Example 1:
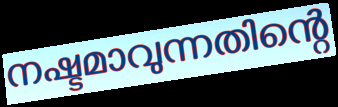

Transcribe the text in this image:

നഷ്ടമാവുന്നതിന്റെ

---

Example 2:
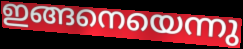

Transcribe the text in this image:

ഇങ്ങനെയെന്നു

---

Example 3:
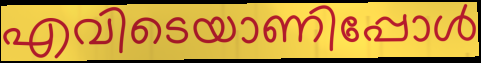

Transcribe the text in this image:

എവിടെയാണിപ്പോൾ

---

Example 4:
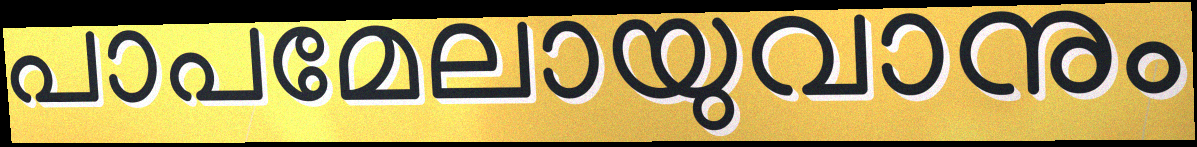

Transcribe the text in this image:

പാപമേലായുവാനും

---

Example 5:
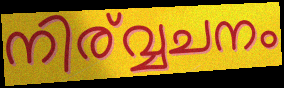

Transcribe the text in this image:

നിര്വ്വചനം